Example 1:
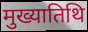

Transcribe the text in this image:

मुख्यातिथि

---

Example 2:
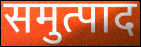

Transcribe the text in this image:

समुत्पाद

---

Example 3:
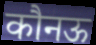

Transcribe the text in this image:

कौनऊ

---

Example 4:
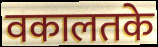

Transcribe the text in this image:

वकालतके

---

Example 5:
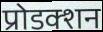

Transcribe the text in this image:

प्रोडक्‍शन